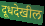
दूधदेखील